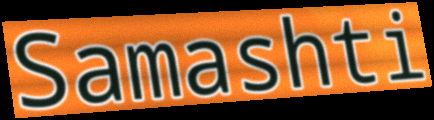
Samashti